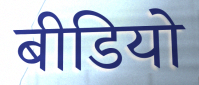
बीडियो